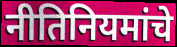
नीतिनियमांचे